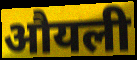
औयली